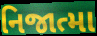
નિજાત્મા